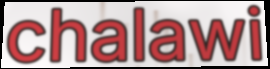
chalawi